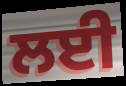
ਲਈ